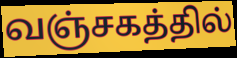
வஞ்சகத்தில்